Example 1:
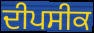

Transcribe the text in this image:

ਦੀਪਸੀਕ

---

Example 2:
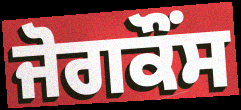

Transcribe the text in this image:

ਜੋਗਕੌਂਸ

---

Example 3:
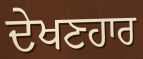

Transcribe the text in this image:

ਦੇਖਣਹਾਰ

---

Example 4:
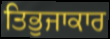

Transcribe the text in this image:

ਤਿਭੁਜਾਕਾਰ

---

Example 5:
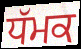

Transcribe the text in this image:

ਧੱਮਕ